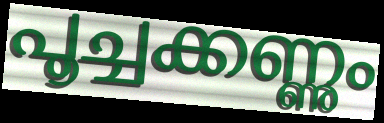
പൂച്ചക്കണ്ണും